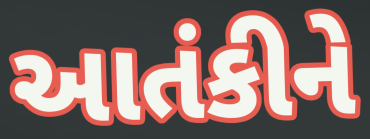
આતંકીને